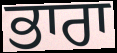
ਭਾਰਾ